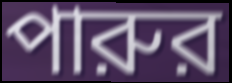
পারুর